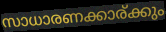
സാധാരണക്കാര്ക്കും